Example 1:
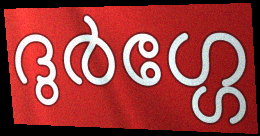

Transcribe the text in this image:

ദുർഗ്ഗേ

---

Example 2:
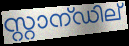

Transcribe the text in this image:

സ്റ്റാന്ഡില്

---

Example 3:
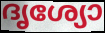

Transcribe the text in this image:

ദൃശ്യോ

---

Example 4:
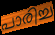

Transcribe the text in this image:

പാരിച്ച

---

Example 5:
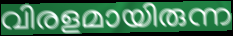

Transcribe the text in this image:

വിരളമായിരുന്ന